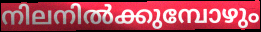
നിലനിൽക്കുമ്പോഴും